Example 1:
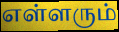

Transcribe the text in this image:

எள்ளரும்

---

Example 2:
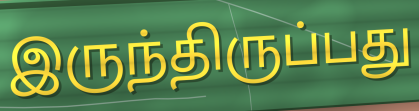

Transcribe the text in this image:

இருந்திருப்பது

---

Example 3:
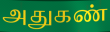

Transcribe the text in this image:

அதுகண்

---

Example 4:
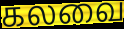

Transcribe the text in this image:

கலவை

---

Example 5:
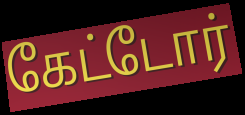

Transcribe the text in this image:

கேட்டோர்